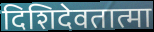
दिशिदेवतात्मा